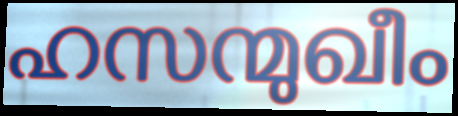
ഹസന്മുഖീം